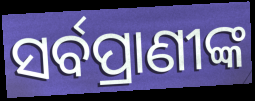
ସର୍ବପ୍ରାଣୀଙ୍କ